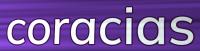
coracias